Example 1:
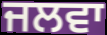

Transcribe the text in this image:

ਜਲਵਾ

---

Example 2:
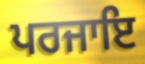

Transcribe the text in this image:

ਪਰਜਾਇ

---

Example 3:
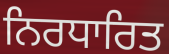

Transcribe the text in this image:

ਨਿਰਧਾਰਿਤ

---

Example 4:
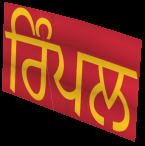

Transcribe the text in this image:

ਰਿੰਪਲ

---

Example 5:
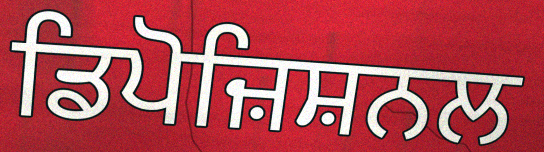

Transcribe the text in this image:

ਡਿਪੋਜ਼ਿਸ਼ਨਲ